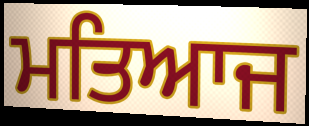
ਮਤਿਆਜ